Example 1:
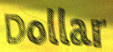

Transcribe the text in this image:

Dollar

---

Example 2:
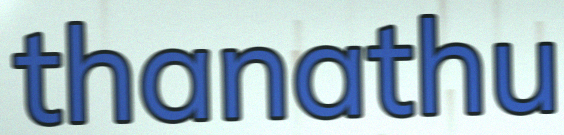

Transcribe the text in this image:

thanathu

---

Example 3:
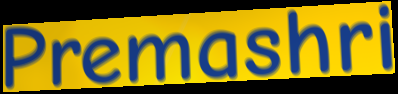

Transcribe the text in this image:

Premashri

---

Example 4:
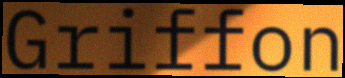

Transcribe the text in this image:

Griffon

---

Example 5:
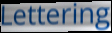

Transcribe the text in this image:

Lettering